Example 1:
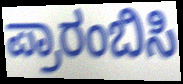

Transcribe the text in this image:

ಪ್ರಾರಂಬಿಸಿ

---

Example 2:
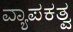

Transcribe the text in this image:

ವ್ಯಾಪಕತ್ವ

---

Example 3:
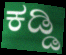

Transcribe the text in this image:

ಕಡ್ಡಿ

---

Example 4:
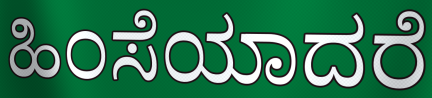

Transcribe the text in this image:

ಹಿಂಸೆಯಾದರೆ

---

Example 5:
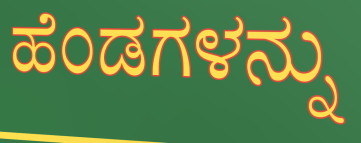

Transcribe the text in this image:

ಹೆಂಡಗಳನ್ನು